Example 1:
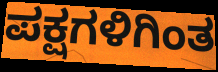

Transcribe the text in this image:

ಪಕ್ಷಗಳಿಗಿಂತ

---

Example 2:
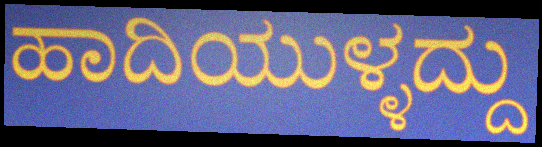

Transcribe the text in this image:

ಹಾದಿಯುಳ್ಳದ್ದು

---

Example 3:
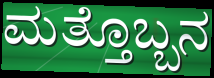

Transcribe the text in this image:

ಮತ್ತೊಬ್ಬನ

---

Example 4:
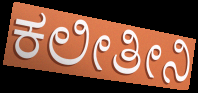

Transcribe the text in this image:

ಕಲೀತೀನಿ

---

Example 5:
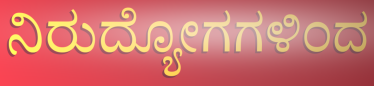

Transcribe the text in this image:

ನಿರುದ್ಯೋಗಗಳಿಂದ